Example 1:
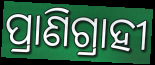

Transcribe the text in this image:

ପ୍ରାଣିଗ୍ରାହୀ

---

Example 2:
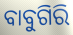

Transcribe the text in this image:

ବାବୁଗିରି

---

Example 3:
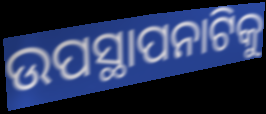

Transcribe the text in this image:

ଉପସ୍ଥାପନାଟିକୁ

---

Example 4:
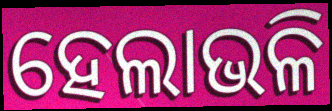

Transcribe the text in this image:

ହେଲାଭଳି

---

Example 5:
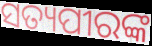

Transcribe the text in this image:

ସତ୍ୟପୀରଙ୍କ